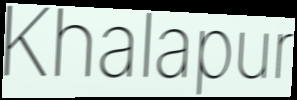
Khalapur